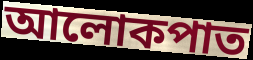
আলোকপাত